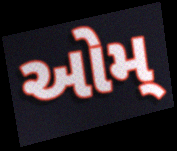
ઓમ્